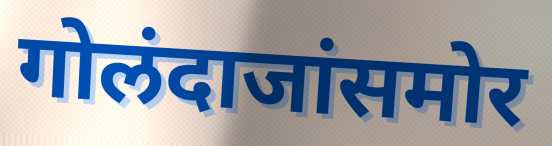
गोलंदाजांसमोर